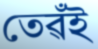
তেৱঁই